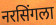
नरसिंगला